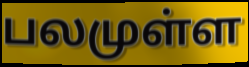
பலமுள்ள